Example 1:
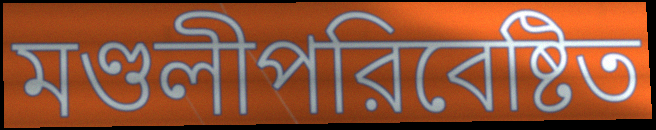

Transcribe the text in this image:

মণ্ডলীপরিবেষ্টিত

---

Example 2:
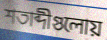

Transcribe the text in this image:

শতাব্দীগুলোয়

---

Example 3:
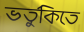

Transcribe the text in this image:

ভর্তুকিতে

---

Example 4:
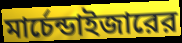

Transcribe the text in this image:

মার্চেন্ডাইজারের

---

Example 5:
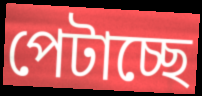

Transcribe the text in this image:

পেটাচ্ছে